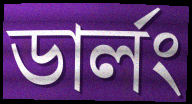
ডার্লং